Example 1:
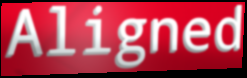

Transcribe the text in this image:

Aligned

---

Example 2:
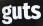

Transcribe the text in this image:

guts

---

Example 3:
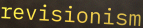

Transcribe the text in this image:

revisionism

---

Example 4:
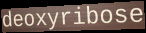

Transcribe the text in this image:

deoxyribose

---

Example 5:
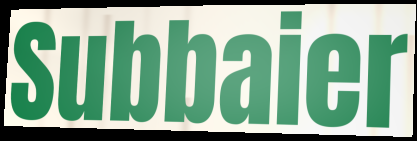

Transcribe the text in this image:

Subbaier